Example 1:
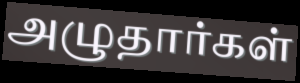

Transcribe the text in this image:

அழுதார்கள்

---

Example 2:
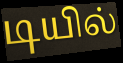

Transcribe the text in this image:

டியில்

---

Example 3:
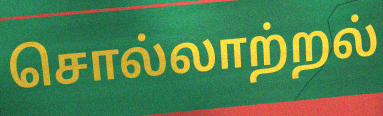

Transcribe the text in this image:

சொல்லாற்றல்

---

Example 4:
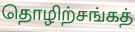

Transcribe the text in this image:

தொழிற்சங்கத்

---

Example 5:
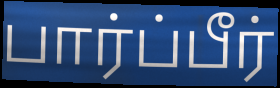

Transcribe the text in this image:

பார்ப்பீர்